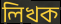
লিখক